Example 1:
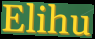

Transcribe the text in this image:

Elihu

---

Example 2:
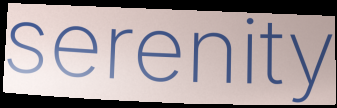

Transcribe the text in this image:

serenity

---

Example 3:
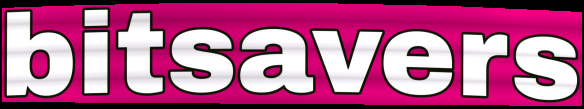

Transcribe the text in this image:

bitsavers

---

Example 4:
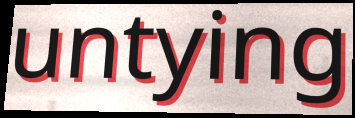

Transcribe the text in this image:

untying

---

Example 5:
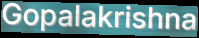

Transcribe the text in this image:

Gopalakrishna